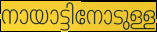
നായാട്ടിനോടുള്ള